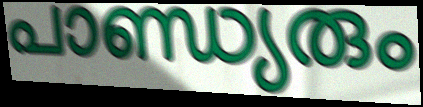
പാണ്ഡ്യരും